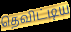
தெவிட்டிய